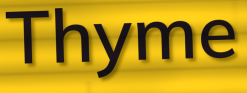
Thyme